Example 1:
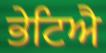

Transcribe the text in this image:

ਭੇਟਿਐ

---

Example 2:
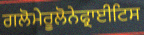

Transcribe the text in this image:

ਗਲੋਮੇਰੂਲੋਨੇਫ੍ਰਾਈਟਿਸ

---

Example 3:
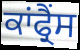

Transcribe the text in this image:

ਕਾਂਫ੍ਰੈਂਸ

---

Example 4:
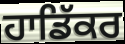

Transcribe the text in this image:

ਹਾਡਿੱਕਰ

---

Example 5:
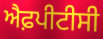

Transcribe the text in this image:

ਐਫ਼ਪੀਟੀਸੀ